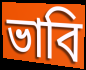
ভাবি